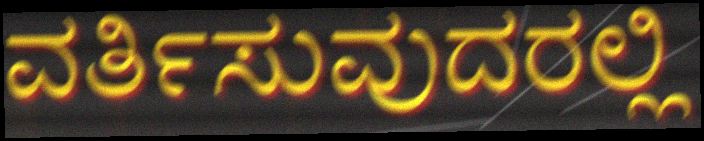
ವರ್ತಿಸುವುದರಲ್ಲಿ